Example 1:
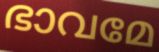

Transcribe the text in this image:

ഭാവമേ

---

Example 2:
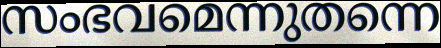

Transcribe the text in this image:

സംഭവമെന്നുതന്നെ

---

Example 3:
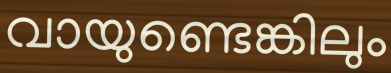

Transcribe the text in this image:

വായുണ്ടെങ്കിലും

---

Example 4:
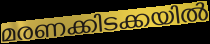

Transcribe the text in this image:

മരണക്കിടക്കയിൽ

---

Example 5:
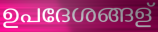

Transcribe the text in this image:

ഉപദേശങ്ങള്